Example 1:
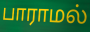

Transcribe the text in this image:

பாராமல்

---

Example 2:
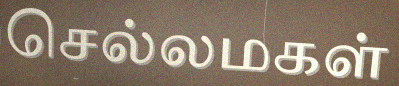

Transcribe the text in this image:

செல்லமகள்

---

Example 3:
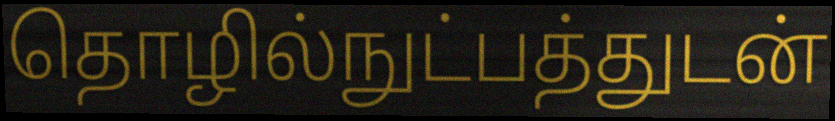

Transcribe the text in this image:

தொழில்நுட்பத்துடன்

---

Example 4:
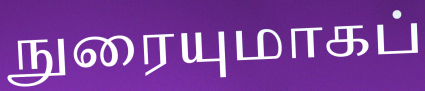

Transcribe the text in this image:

நுரையுமாகப்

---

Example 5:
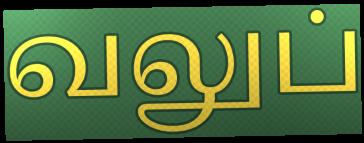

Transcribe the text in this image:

வலுப்